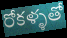
రోకళ్ళతో